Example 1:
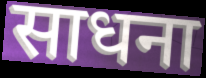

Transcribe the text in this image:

साधना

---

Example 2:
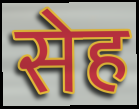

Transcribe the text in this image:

सेह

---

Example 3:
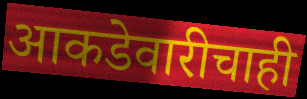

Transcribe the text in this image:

आकडेवारीचाही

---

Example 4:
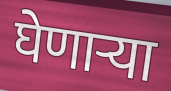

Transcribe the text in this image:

घेणार्‍या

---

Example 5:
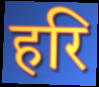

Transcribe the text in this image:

हरि